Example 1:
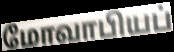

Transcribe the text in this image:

மோவாபியப்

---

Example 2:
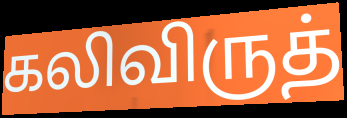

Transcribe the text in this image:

கலிவிருத்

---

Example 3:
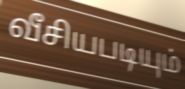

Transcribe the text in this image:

வீசியபடியும்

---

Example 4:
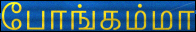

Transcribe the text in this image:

போங்கம்மா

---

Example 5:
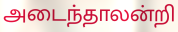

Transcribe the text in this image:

அடைந்தாலன்றி